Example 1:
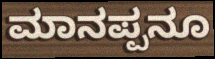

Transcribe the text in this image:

ಮಾನಪ್ಪನೂ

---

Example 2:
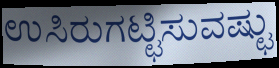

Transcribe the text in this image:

ಉಸಿರುಗಟ್ಟಿಸುವಷ್ಟು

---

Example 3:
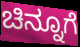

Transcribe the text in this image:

ಚಿನ್ನೂಗೆ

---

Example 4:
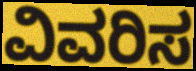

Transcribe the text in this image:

ವಿವರಿಸ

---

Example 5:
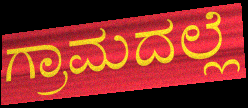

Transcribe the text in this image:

ಗ್ರಾಮದಲ್ಲೆ